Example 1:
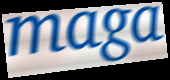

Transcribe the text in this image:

maga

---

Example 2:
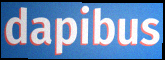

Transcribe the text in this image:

dapibus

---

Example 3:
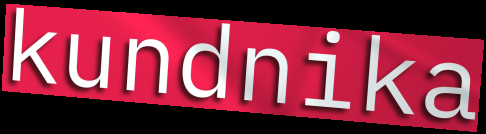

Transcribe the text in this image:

kundnika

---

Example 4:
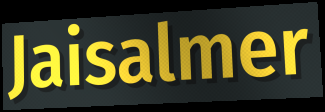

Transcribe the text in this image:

Jaisalmer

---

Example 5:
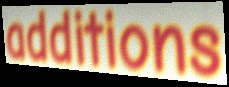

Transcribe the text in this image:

additions